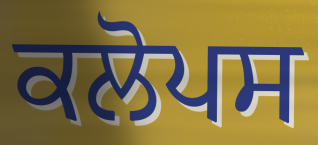
ਕਲੋਪਸ